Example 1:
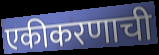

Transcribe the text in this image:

एकीकरणाची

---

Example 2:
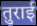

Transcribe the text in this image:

तुराई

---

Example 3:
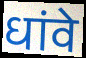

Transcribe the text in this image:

धांवे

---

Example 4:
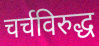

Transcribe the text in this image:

चर्चविरुद्ध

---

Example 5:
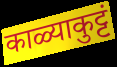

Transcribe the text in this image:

काळ्याकुट्टं